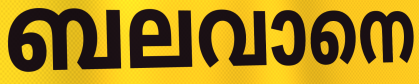
ബലവാനെ